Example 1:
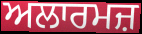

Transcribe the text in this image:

ਅਲਾਰਮਜ਼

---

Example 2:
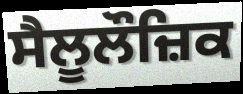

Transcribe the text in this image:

ਸੈਲੂਲੌਜ਼ਿਕ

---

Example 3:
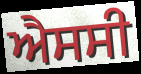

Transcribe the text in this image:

ਐਸਸੀ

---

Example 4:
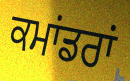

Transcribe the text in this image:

ਕਮਾਂਡਰਾਂ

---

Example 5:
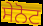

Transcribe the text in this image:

ਸੇਨੋਟ